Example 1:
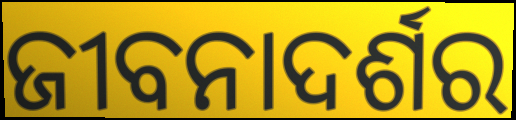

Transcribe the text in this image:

ଜୀବନାଦର୍ଶର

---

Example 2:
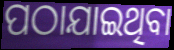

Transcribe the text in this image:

ପଠାଯାଇଥିବା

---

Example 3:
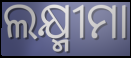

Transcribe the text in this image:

ଲକ୍ଷ୍ମୀମା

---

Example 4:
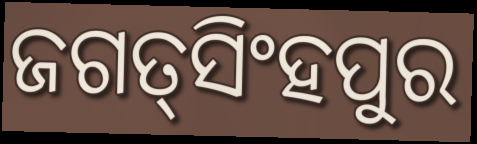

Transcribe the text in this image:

ଜଗତ୍‌ସିଂହପୁର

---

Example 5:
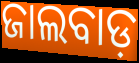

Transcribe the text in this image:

ଜାଲବାଡ଼